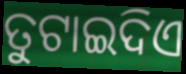
ତୁଟାଇଦିଏ